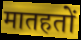
मातहतों